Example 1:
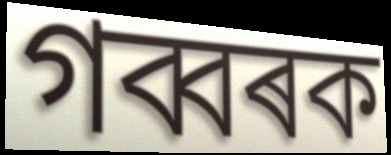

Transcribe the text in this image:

গব্বৰক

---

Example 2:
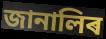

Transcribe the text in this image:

জানালিৰ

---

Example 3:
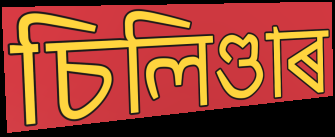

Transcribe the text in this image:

চিলিণ্ডাৰ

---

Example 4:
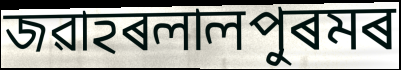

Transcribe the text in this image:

জৱাহৰলালপুৰমৰ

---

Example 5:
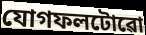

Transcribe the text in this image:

যোগফলটোৱো